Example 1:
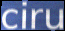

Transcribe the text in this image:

ciru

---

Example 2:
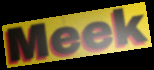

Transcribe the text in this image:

Meek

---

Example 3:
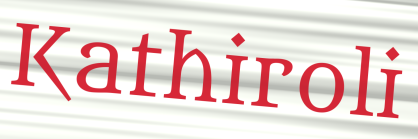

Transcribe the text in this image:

Kathiroli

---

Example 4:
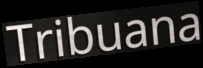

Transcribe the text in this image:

Tribuana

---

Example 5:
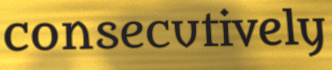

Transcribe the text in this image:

consecutively